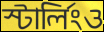
স্টার্লিংও